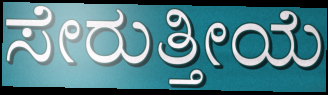
ಸೇರುತ್ತೀಯೆ